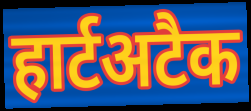
हार्टअटैक